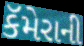
કૅમેરાની